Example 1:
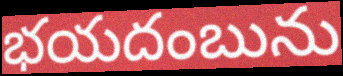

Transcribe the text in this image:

భయదంబును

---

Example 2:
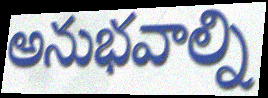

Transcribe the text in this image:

అనుభవాల్ని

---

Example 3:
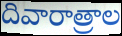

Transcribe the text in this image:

దివారాత్రాల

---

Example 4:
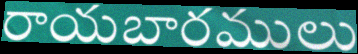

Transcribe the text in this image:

రాయబారములు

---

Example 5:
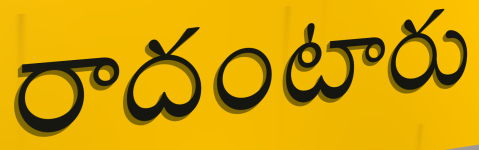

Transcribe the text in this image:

రాదంటారు